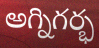
అగ్నిగర్భ